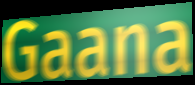
Gaana